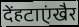
देंहटाएंखैर